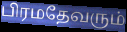
பிரமதேவரும்